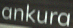
ankura